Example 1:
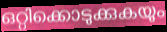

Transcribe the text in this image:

ഒറ്റിക്കൊടുക്കുകയും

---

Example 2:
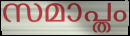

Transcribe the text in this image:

സമാപ്തം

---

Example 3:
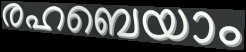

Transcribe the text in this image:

രഹബെയാം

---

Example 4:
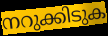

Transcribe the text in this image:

നറുക്കിടുക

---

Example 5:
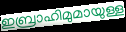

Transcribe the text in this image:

ഇബ്രാഹിമുമായുള്ള